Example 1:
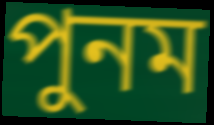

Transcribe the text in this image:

পুনম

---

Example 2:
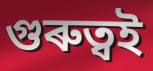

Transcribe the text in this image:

গুৰুত্বই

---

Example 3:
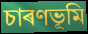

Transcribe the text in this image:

চাৰণভূমি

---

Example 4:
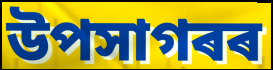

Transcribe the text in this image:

উপসাগৰৰ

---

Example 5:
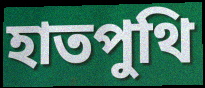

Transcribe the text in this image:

হাতপুথি